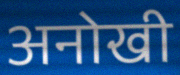
अनोखी